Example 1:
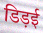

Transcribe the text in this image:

डिड़ई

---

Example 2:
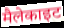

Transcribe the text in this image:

मैलेकाइट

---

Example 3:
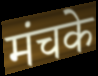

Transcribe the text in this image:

मंचके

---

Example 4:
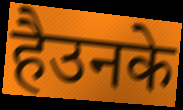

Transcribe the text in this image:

हैउनके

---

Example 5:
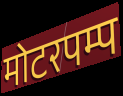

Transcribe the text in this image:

मोटरपम्प